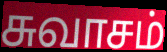
சுவாசம்